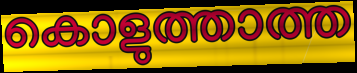
കൊളുത്താത്ത